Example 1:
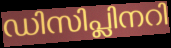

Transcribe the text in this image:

ഡിസിപ്ലിനറി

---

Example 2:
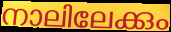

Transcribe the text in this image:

നാലിലേക്കും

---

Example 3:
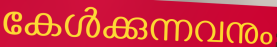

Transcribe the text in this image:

കേൾക്കുന്നവനും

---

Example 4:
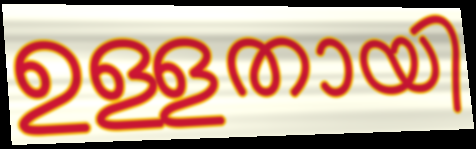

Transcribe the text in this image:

ഉള്ളതായി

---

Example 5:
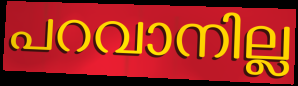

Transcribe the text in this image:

പറവാനില്ല